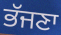
ਭੱਜਣਾ